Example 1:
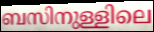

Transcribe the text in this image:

ബസിനുള്ളിലെ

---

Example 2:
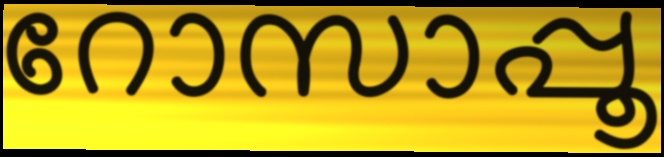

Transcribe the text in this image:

റോസാപ്പൂ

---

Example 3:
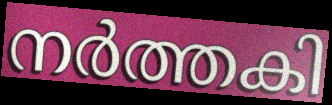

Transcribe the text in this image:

നർത്തകി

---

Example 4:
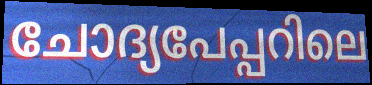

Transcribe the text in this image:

ചോദ്യപേപ്പറിലെ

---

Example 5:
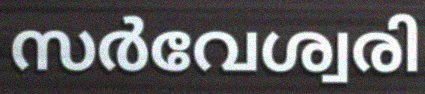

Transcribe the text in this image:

സർവേശ്വരി